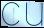
cu